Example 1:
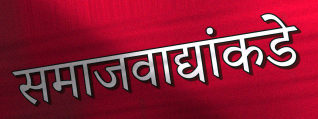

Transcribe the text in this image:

समाजवाद्यांकडे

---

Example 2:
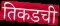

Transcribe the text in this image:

तिकडची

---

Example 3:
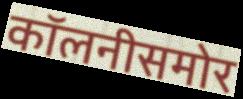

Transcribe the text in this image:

कॉलनीसमोर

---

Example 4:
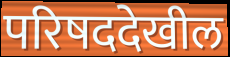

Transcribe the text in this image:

परिषददेखील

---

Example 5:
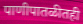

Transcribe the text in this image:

पाणीपातळीतही